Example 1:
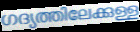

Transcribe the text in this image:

ഗദ്യത്തിലേക്കുള്ള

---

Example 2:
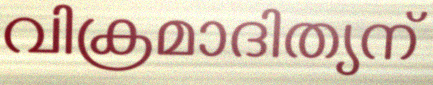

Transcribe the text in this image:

വിക്രമാദിത്യന്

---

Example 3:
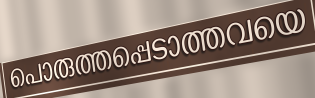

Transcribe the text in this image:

പൊരുത്തപ്പെടാത്തവയെ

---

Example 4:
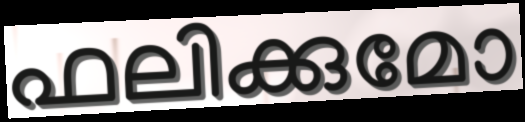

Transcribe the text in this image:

ഫലിക്കുമോ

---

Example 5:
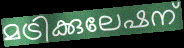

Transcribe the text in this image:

മട്രിക്കുലേഷന്